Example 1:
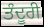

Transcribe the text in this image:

ਤੰਦੂਰੀ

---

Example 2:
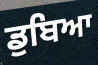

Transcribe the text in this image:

ਡੁਬਿਆ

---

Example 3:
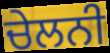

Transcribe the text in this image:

ਚੇਲਨੀ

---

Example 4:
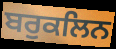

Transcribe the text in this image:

ਬਰੁਕਲਿਨ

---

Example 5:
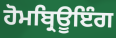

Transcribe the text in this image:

ਹੋਮਬ੍ਰਿਊਇੰਗ